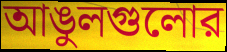
আঙুলগুলোর